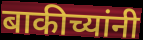
बाकीच्यांनी